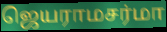
ஜெயராமசர்மா